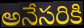
అనేసరికి